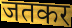
जतकर